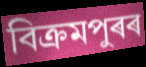
বিক্ৰমপুৰৰ